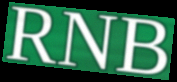
RNB